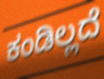
ಕಂಡಿಲ್ಲದೆ